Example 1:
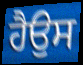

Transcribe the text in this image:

ਹੈਉਸ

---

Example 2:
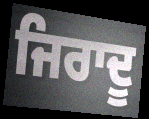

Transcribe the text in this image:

ਜਿਰਾਦੂ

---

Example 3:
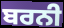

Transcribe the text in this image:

ਬਰਨੀ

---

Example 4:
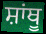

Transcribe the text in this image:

ਸ਼ਾਂਥੂ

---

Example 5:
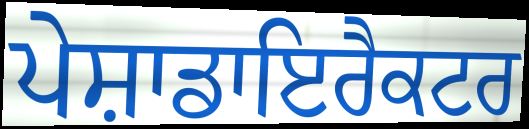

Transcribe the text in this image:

ਪੇਸ਼ਾਡਾਇਰੈਕਟਰ